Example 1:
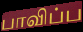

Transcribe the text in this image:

பாவிப்ப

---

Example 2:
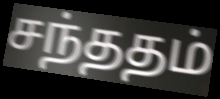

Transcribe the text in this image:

சந்ததம்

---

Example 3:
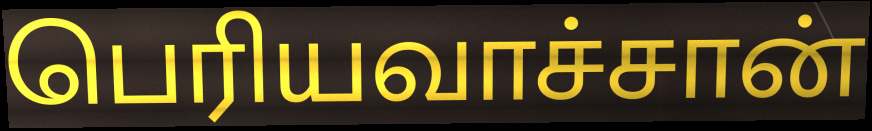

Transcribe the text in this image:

பெரியவாச்சான்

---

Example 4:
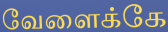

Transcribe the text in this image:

வேளைக்கே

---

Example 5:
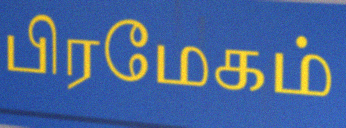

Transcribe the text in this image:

பிரமேகம்